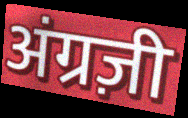
अंग्रज़ी